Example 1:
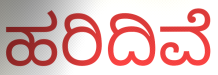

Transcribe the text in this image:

ಹರಿದಿವೆ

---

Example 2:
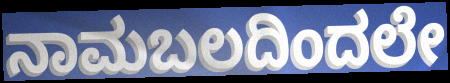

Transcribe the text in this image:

ನಾಮಬಲದಿಂದಲೇ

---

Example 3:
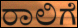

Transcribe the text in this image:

ರಾಲಿಗೆ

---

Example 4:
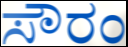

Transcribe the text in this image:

ಸೌರಂ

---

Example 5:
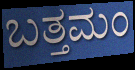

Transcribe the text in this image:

ಬತ್ತಮಂ